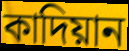
কাদিয়ান